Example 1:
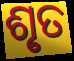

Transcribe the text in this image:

ଶୃତ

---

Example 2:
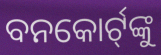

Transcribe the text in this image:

ବନକୋର୍ଟ୍‍ଙ୍କୁ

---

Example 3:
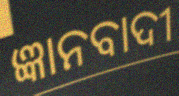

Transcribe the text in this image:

ଜ୍ଞାନବାଦୀ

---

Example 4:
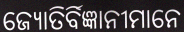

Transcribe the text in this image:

ଜ୍ୟୋତିର୍ବିଜ୍ଞାନୀମାନେ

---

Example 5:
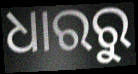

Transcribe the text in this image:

ଧାରରୁ